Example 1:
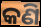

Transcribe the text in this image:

କଣି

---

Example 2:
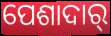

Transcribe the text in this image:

ପେଶାଦାର୍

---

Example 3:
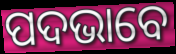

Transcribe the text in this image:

ପଦଭାବେ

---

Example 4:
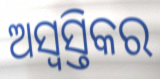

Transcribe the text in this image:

ଅସ୍ୱସ୍ତିକର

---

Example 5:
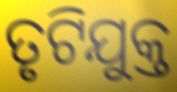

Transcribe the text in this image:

ତୃଟିଯୁକ୍ତ